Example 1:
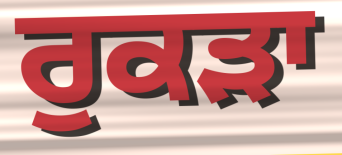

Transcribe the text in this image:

ਰੁਕੜਾ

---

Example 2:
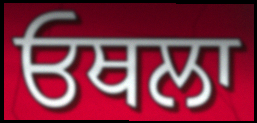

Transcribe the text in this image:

ਓਥਲਾ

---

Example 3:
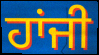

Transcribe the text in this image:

ਹਾਂਜੀ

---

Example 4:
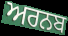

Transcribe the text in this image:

ਅਰਨਬ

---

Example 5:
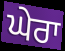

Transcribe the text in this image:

ਘੇਰਾ